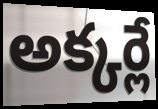
అక్కర్లే